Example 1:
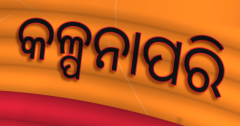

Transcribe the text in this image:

କଳ୍ପନାପରି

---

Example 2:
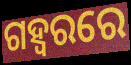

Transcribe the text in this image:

ଗହ୍ୱରରେ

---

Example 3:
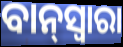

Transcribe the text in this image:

ବାନ୍‌ସ୍ୱାରା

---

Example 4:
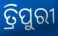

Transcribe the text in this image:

ତ୍ରିପୁରୀ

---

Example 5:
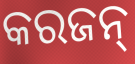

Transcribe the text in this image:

କରଜନ୍